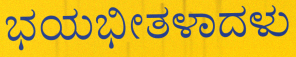
ಭಯಭೀತಳಾದಳು